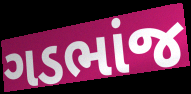
ગડભાંજ